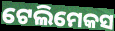
ଟେଲିମେକସ